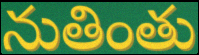
నుతింతు